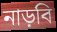
নাড়বি